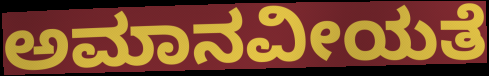
ಅಮಾನವೀಯತೆ